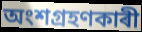
অংশগ্ৰহণকাৰী